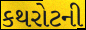
કથરોટની